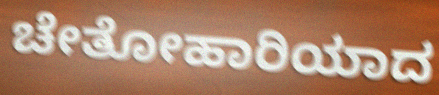
ಚೇತೋಹಾರಿಯಾದ